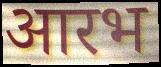
आरभ